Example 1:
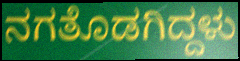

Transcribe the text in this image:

ನಗತೊಡಗಿದ್ದಳು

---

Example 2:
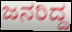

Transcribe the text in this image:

ಜನರಿದ್ದ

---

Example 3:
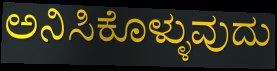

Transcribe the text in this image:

ಅನಿಸಿಕೊಳ್ಳುವುದು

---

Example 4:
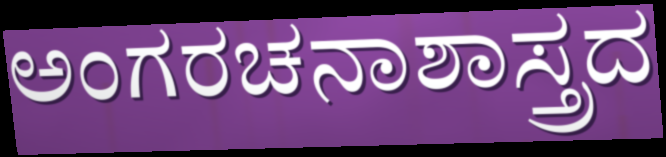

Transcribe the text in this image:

ಅಂಗರಚನಾಶಾಸ್ತ್ರದ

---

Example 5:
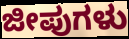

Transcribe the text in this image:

ಜೀಪುಗಳು